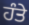
ਹੰਤੇ